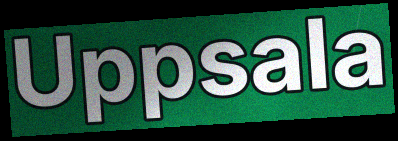
Uppsala